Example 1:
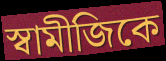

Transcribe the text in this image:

স্বামীজিকে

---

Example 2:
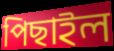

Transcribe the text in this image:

পিছাইল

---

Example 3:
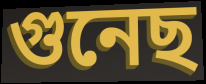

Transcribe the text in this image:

গুনেছ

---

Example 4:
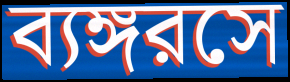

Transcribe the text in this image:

ব্যঙ্গরসে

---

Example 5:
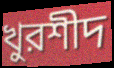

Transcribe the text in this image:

খুরশীদ